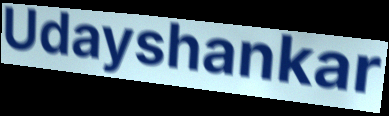
Udayshankar